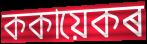
ককায়েকৰ